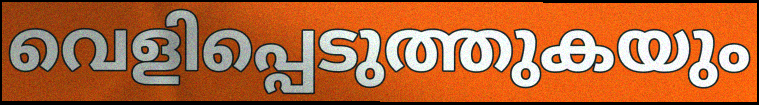
വെളിപ്പെടുത്തുകയും